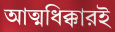
আত্মধিক্কারই